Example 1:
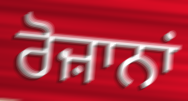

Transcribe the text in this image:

ਰੋਜ਼ਾਨਾਂ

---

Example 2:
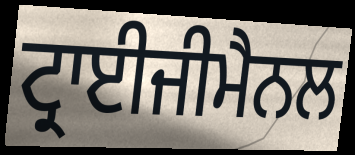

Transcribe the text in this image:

ਟ੍ਰਾਈਜੀਮੈਨਲ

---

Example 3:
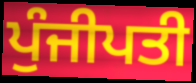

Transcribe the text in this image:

ਪੁੰਜੀਪਤੀ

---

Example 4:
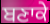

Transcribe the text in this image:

ਬਣਾਕੇ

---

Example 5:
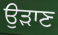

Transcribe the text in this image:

ਉਡ਼ਾਣ